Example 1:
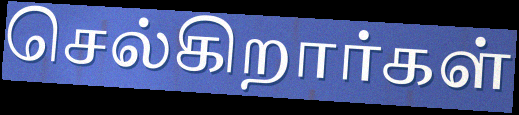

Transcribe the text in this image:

செல்கிறார்கள்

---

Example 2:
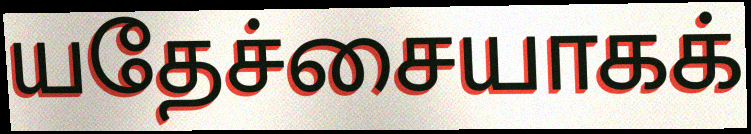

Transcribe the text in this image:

யதேச்சையாகக்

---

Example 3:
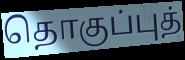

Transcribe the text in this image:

தொகுப்புத்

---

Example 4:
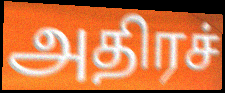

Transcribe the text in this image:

அதிரச்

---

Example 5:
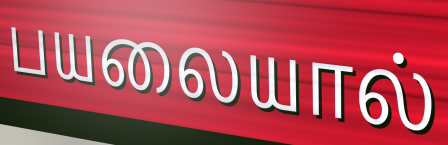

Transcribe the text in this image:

பயலையால்